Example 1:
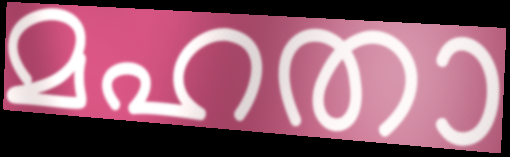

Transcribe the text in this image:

മഹതാ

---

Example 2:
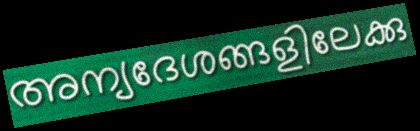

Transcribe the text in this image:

അന്യദേശങ്ങളിലേക്കു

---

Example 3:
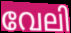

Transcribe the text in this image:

വേലി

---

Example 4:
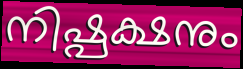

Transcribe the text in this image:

നിഷ്പക്ഷനും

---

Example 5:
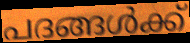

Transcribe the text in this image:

പദങ്ങൾക്ക്